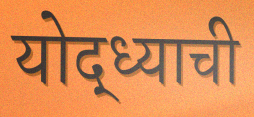
योद्ध्याची